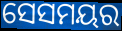
ସେସମୟର